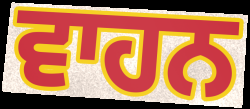
ਵਾਹਨ